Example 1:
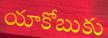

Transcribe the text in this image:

యాకోబుకు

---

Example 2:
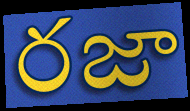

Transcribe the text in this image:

రజా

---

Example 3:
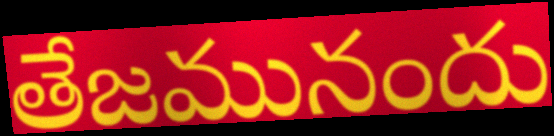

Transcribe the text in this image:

తేజమునందు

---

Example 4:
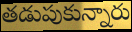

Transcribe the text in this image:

తడుపుకున్నారు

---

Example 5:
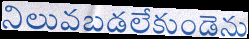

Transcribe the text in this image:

నిలువబడలేకుండెను